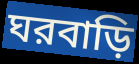
ঘরবাড়ি